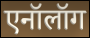
एनॉलॉग